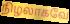
நிழலாகவே